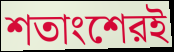
শতাংশেরই